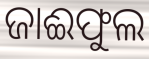
ଜାଈଫୁଲ